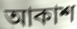
আকাশ